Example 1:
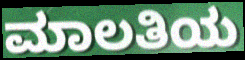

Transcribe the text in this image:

ಮಾಲತಿಯ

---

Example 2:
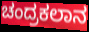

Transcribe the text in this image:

ಚಂದ್ರಕಲಾನ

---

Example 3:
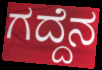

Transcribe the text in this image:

ಗದ್ದೆನ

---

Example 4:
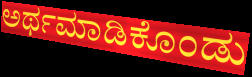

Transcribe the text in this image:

ಅರ್ಥಮಾಡಿಕೊಂಡು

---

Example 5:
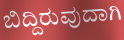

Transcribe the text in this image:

ಬಿದ್ದಿರುವುದಾಗಿ